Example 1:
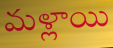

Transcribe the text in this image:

మళ్లాయి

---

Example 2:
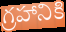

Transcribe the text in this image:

గ్రహానికి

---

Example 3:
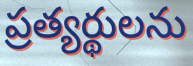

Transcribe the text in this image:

ప్రత్యర్థులను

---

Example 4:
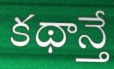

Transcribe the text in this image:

కథాన్తే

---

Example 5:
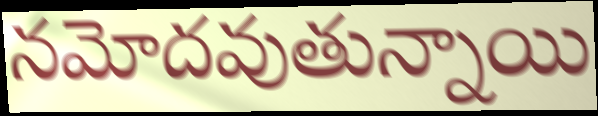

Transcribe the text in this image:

నమోదవుతున్నాయి